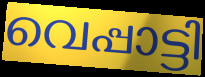
വെപ്പാട്ടി